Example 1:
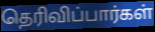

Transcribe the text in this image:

தெரிவிப்பார்கள்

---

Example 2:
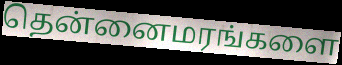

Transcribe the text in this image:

தென்னைமரங்களை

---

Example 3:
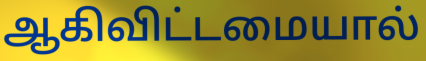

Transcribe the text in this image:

ஆகிவிட்டமையால்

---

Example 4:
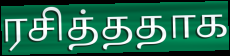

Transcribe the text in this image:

ரசித்ததாக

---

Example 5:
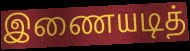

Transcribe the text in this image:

இணையடித்